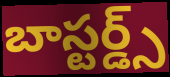
బాస్టర్డ్స్